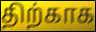
திற்காக